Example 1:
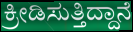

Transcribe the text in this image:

ಕ್ರೀಡಿಸುತ್ತಿದ್ದಾನೆ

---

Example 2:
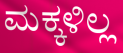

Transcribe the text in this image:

ಮಕ್ಕಳಿಲ್ಲ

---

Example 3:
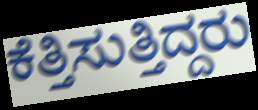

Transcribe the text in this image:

ಕೆತ್ತಿಸುತ್ತಿದ್ದರು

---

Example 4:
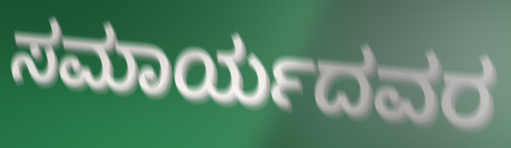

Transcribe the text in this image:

ಸಮಾರ್ಯದವರ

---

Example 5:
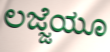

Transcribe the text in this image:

ಲಜ್ಜೆಯೂ